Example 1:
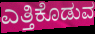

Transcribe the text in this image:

ಎತ್ತಿಕೊಡುವ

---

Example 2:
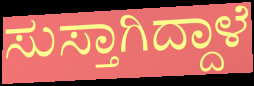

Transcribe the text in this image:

ಸುಸ್ತಾಗಿದ್ದಾಳೆ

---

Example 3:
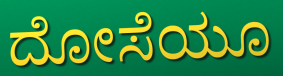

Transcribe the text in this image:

ದೋಸೆಯೂ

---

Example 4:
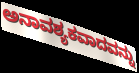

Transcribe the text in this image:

ಅನಾವಶ್ಯಕವಾದವನ್ನು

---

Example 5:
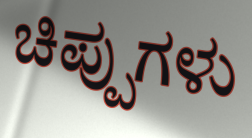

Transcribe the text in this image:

ಚಿಪ್ಪುಗಳು